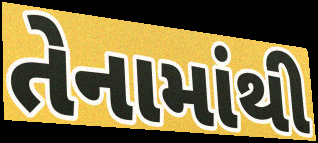
તેનામાંથી